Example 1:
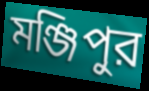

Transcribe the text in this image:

মঞ্জিপুর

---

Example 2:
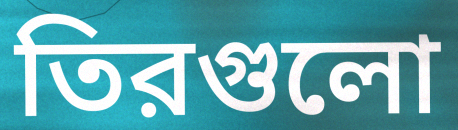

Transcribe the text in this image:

তিরগুলো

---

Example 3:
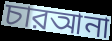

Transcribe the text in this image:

চারআনা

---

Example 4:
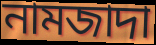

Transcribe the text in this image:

নামজাদা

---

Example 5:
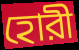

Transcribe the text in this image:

হোরী